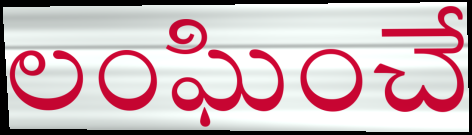
లంఘించే